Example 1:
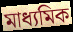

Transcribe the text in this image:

মাধ্যমিক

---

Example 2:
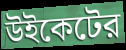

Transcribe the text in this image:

উইকেটের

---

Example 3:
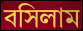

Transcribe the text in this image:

বসিলাম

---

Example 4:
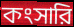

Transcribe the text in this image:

কংসারি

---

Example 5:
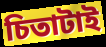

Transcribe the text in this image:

চিতাটাই